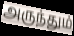
அருந்தும்